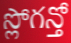
స్లోగన్తో